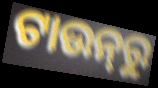
ଟାଉନ୍‌ରୁ